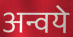
अन्‍वये